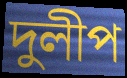
দুলীপ